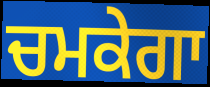
ਚਮਕੇਗਾ